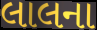
લાલના